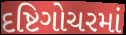
દષ્ટિગોચરમાં